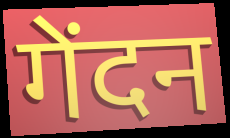
गेंदन